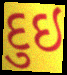
દુઇ